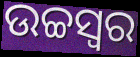
ଉଚ୍ଚସ୍ଵର